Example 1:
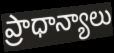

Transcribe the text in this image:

ప్రాధాన్యాలు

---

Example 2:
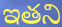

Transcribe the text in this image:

ఇతని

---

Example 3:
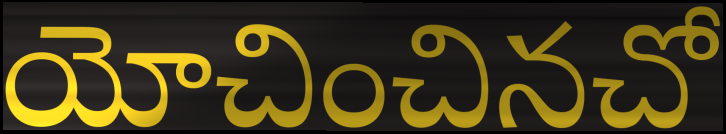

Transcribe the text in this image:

యోచించినచో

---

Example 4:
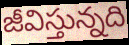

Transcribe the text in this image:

జీవిస్తున్నది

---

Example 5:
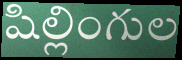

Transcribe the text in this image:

షిల్లింగుల